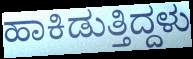
ಹಾಕಿಡುತ್ತಿದ್ದಳು